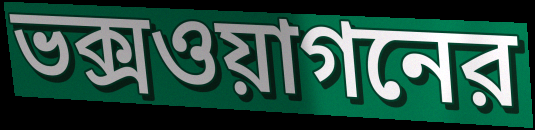
ভক্সওয়াগনের